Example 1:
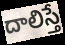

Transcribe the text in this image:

దాలిస్తే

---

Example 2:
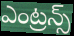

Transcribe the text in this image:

ఎంట్రన్స్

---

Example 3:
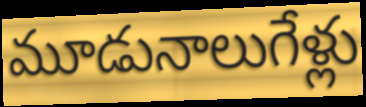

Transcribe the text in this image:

మూడునాలుగేళ్లు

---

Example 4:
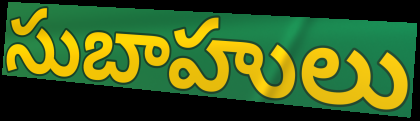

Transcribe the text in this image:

సుబాహులు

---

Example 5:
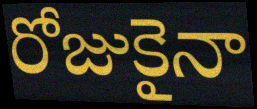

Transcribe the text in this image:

రోజుకైనా